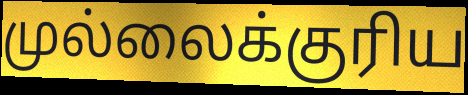
முல்லைக்குரிய